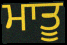
ਮਾਤੂ